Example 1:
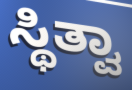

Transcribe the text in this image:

ಸ್ಥಿತ್ವಾ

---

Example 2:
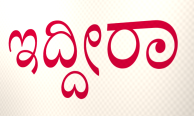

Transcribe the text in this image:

ಇದ್ದೀರಾ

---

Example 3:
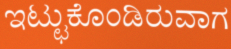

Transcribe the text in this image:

ಇಟ್ಟುಕೊಂಡಿರುವಾಗ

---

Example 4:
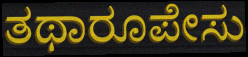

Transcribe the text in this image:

ತಥಾರೂಪೇಸು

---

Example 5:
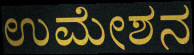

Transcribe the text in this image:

ಉಮೇಶನ